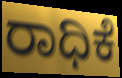
ರಾಧಿಕೆ